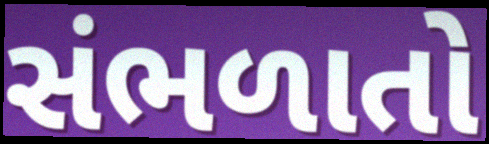
સંભળાતો